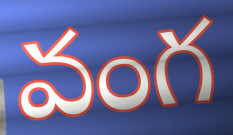
వంగ